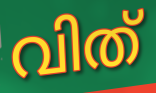
വിത്